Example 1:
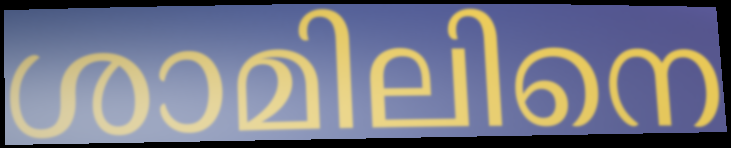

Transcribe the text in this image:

ശാമിലിനെ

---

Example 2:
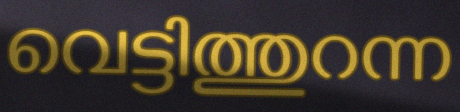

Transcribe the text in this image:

വെട്ടിത്തുറന്ന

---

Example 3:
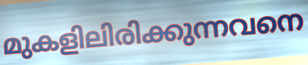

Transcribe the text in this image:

മുകളിലിരിക്കുന്നവനെ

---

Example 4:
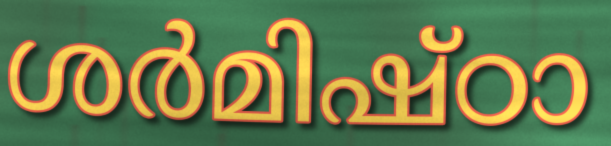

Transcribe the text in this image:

ശർമിഷ്ഠാ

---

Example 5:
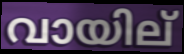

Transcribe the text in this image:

വായില്